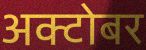
अक्टोबर